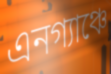
এনগ্যাঞ্চে